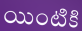
యింటికి